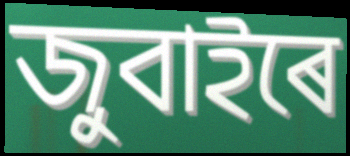
জুবাইৰে